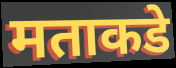
मताकडे